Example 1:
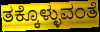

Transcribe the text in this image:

ತಕ್ಕೊಳ್ಳುವಂತೆ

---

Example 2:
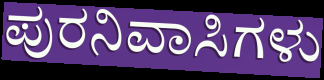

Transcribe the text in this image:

ಪುರನಿವಾಸಿಗಳು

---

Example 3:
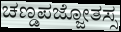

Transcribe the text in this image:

ಚಣ್ಡಪಜ್ಜೋತಸ್ಸ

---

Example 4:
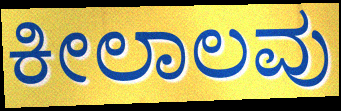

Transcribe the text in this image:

ಕೀಲಾಲವು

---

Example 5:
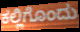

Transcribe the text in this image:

ಕಲ್ಲಿಗೊಂದು